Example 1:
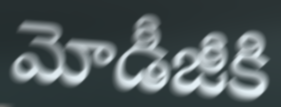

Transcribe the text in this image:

మోడీజీకి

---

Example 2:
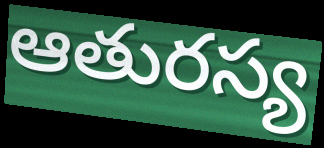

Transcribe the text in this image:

ఆతురస్య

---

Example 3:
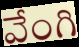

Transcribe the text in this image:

వేంగి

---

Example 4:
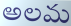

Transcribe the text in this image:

అలమ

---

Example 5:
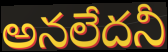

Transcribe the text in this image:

అనలేదనీ